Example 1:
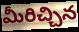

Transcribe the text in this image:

మీరిచ్చిన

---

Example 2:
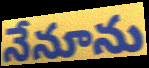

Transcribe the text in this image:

నేనూను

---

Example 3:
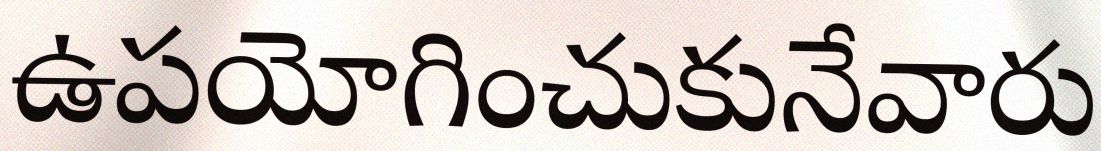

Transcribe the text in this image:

ఉపయోగించుకునేవారు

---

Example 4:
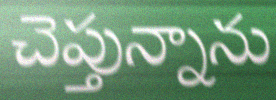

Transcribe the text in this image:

చెప్తున్నాను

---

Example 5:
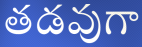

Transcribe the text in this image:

తడవుగా